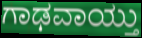
ಗಾಢವಾಯ್ತು